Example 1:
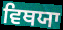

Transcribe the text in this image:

ਵਿਥਯਾ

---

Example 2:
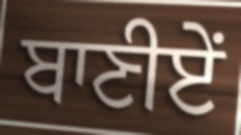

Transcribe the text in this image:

ਬਾਣੀਏਂ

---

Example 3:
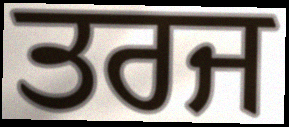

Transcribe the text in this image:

ਤਰਜ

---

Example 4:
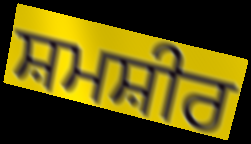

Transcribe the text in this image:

ਸ਼ਮਸ਼ੀਰ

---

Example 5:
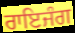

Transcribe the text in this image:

ਰਾਇਜੰਗ